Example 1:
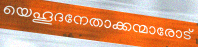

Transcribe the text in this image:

യെഹൂദനേതാക്കന്മാരോട്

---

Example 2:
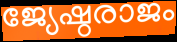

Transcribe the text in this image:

ജ്യേഷ്ഠരാജം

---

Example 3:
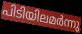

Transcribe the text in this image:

പിടിയിലമർന്നു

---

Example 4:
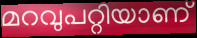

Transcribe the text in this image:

മറവുപറ്റിയാണ്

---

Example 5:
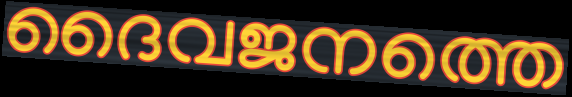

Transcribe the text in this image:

ദൈവജനത്തെ